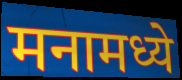
मनामध्ये